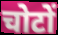
चोटों